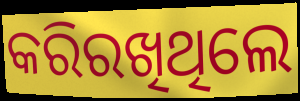
କରିରଖିଥିଲେ